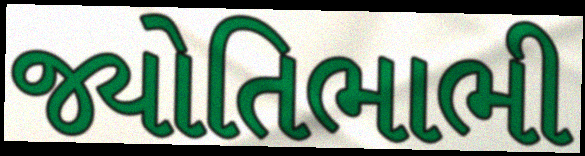
જ્યોતિભાભી